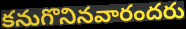
కనుగొనినవారందరు